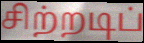
சிற்றடிப்